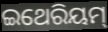
ଇଥେରିୟମ୍